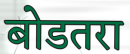
बोडतरा